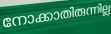
നോക്കാതിരുന്നില്ല